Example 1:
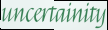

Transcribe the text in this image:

uncertainity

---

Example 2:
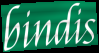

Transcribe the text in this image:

bindis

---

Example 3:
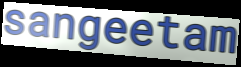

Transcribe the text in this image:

sangeetam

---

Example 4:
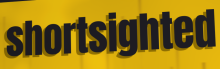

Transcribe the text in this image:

shortsighted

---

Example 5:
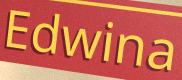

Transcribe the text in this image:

Edwina